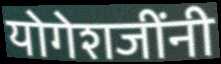
योगेशजींनी